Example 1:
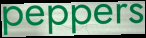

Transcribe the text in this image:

peppers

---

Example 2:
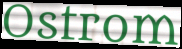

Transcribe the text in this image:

Ostrom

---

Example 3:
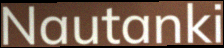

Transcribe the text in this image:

Nautanki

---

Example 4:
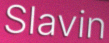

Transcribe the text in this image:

Slavin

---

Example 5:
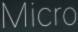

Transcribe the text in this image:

Micro